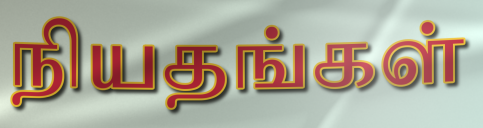
நியதங்கள்